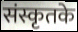
संस्कृतके